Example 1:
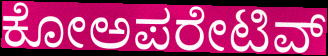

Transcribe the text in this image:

ಕೋಅಪರೇಟಿವ್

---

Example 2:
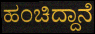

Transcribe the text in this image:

ಹಂಚಿದ್ದಾನೆ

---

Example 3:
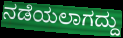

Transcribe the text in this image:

ನಡೆಯಲಾಗದ್ದು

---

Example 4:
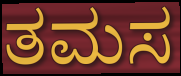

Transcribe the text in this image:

ತಮಸ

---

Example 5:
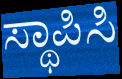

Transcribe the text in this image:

ಸ್ಥಾಪಿಸಿ